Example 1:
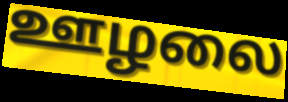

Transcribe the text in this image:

ஊழலை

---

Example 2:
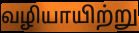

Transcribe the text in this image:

வழியாயிற்று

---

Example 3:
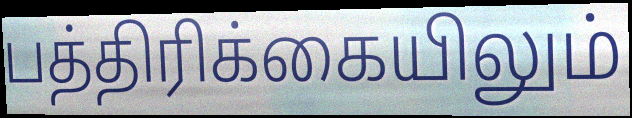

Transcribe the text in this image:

பத்திரிக்கையிலும்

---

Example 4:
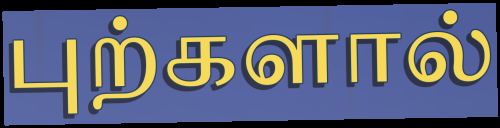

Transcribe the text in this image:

புற்களால்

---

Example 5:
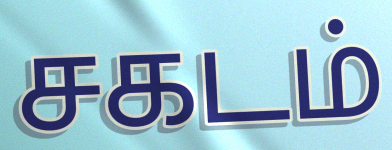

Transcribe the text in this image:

சகடம்